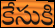
కేసుకి